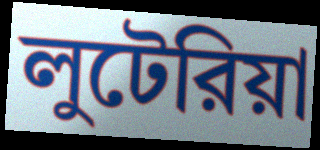
লুটেরিয়া